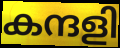
കന്ദളി